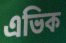
এভিক